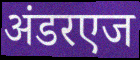
अंडरएज